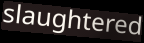
slaughtered